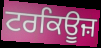
ਟਰਕਿਊਜ਼